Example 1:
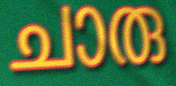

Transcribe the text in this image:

ചാരു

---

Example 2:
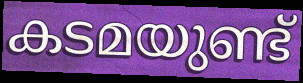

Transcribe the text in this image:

കടമയുണ്ട്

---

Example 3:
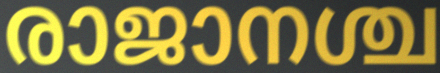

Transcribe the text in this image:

രാജാനശ്ച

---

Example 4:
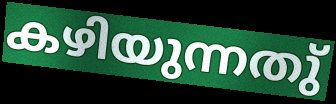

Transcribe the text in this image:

കഴിയുന്നതു്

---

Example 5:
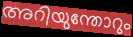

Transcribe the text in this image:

അറിയുന്തോറും